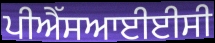
ਪੀਐੱਸਆਈਈਸੀ